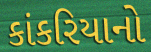
કાંકરિયાનો